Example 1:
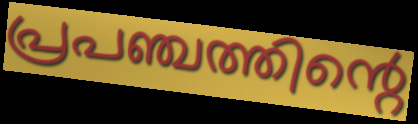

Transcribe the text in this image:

പ്രപഞ്ചത്തിന്റെ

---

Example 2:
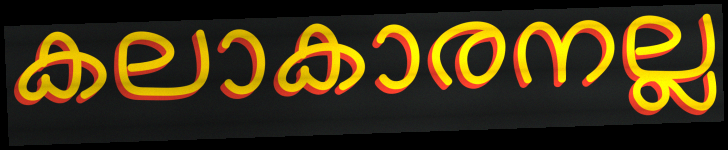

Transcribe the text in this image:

കലാകാരനല്ല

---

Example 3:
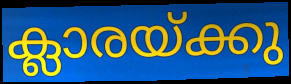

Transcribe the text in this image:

ക്ലാരയ്ക്കു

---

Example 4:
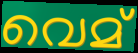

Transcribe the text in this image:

വെമ്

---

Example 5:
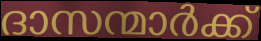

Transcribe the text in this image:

ദാസന്മാർക്ക്